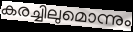
കരച്ചിലുമൊന്നും